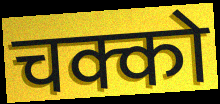
चक्को